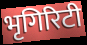
भृगिरिटी